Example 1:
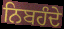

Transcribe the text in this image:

ਨਿਬਹੰਦੇ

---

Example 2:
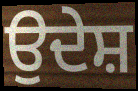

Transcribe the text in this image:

ਉਦੇਸ਼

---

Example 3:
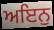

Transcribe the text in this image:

ਅਇਨੁ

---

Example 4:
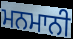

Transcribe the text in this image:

ਮਨਮਾਨੀ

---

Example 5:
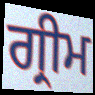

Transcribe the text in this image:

ਗ੍ਰੀਮ